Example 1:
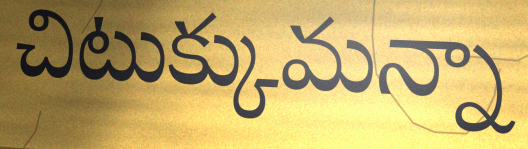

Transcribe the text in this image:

చిటుక్కుమన్నా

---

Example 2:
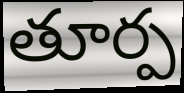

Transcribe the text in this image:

తూర్ప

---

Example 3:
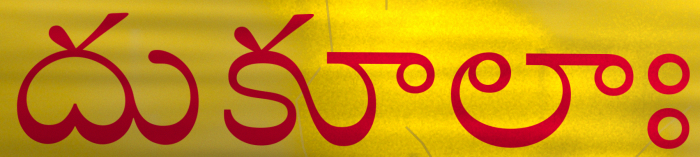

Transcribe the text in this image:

దుకూలాః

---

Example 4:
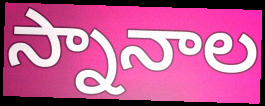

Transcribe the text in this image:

స్నానాల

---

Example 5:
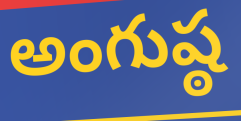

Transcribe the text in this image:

అంగుష్ఠ